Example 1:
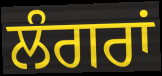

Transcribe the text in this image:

ਲੰਗਰਾਂ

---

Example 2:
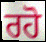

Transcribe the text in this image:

ਰਹੋ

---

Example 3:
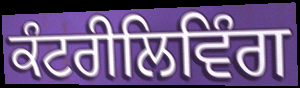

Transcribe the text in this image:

ਕੰਟਰੀਲਿਵਿੰਗ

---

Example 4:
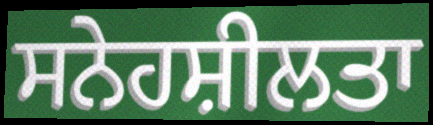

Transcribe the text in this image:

ਸਨੇਹਸ਼ੀਲਤਾ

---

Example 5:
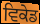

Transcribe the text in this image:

ਵਿਕੇਡ